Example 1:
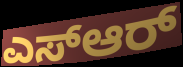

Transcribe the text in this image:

ಎಸ್ಆರ್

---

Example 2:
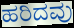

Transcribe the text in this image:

ಹರಿದವು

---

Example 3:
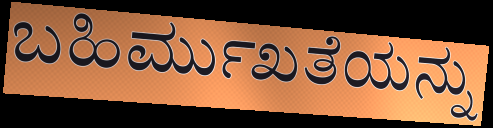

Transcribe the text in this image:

ಬಹಿರ್ಮುಖತೆಯನ್ನು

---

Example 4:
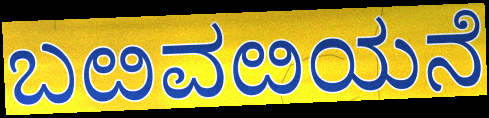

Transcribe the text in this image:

ಬೞವೞಯನೆ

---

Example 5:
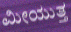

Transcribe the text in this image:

ಮೀಯುತ್ತ